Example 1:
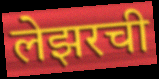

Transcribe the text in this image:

लेझरची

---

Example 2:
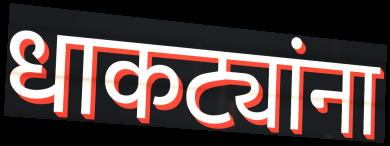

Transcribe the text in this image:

धाकट्यांना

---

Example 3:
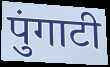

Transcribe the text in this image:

पुंगाटी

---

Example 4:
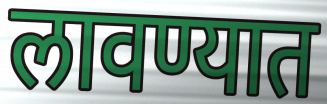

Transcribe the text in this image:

लावण्यात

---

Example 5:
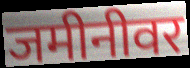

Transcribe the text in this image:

जमीनीवर